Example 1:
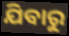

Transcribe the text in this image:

ଯିବାରୁ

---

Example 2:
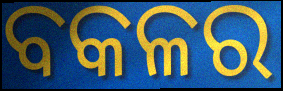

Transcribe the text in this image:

ବକଳର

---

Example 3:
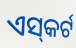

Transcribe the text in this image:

ଏସ୍‌କର୍ଟ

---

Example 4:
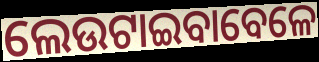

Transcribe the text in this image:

ଲେଉଟାଇବାବେଳେ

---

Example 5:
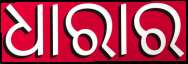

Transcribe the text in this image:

ଧାରାର